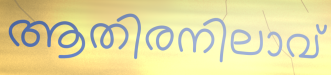
ആതിരനിലാവ്